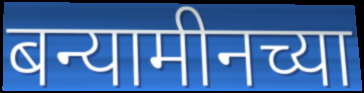
बन्यामीनच्या